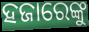
ହଜାରେଙ୍କୁ